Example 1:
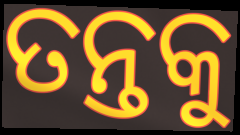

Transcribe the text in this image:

ତନ୍ତକୁ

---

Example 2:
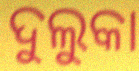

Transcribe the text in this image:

ଦୁଲୁକା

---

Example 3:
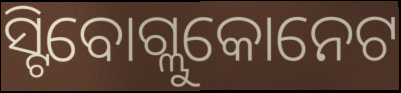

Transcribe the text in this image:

ସ୍ଟିବୋଗ୍ଲୁକୋନେଟ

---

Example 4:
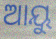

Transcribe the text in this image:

ଆୟୁ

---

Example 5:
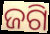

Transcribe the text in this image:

ଜଗି